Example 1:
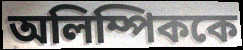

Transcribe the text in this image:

অলিম্পিককে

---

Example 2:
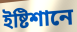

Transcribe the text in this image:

ইষ্টিশানে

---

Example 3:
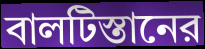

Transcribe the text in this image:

বালটিস্তানের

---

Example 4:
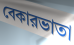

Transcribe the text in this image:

বেকারভাতা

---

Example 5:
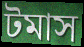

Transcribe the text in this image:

টমাস